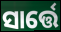
ସାର୍ତ୍ତେ